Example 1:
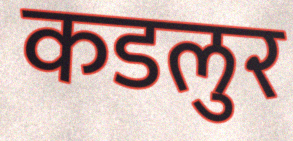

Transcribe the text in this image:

कडलुर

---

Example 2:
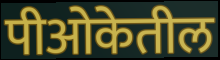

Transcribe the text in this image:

पीओकेतील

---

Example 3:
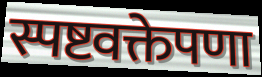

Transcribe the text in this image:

स्पष्टवक्तेपणा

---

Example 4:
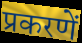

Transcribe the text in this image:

प्रकरणें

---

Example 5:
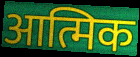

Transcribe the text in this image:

आत्मिक